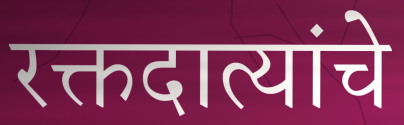
रक्तदात्यांचे